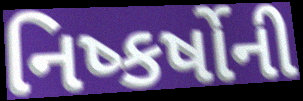
નિષ્કર્ષોની